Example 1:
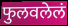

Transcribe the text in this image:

फुलवलेलं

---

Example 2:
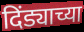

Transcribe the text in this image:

दिंड्याच्या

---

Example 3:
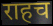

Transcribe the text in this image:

राहच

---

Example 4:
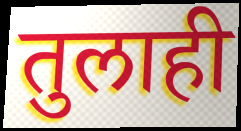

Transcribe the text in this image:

तुलाही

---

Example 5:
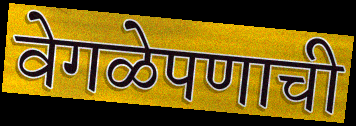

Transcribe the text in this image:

वेगळेपणाची